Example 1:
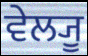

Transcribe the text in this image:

ਵੇਲ੍ਯੂ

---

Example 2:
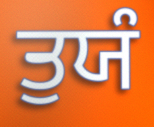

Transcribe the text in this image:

ਤੁਯੰ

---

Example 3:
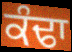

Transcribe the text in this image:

ਕੰਢਾ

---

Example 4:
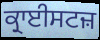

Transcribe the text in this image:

ਕ੍ਰਾਈਸਟਜ਼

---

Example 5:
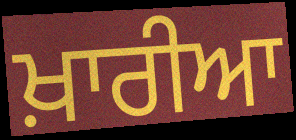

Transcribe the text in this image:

ਖ਼ਾਰੀਆ